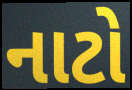
નાટો